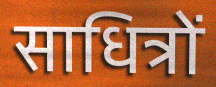
साधित्रों